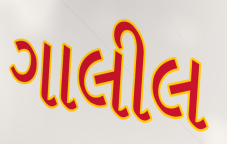
ગાલીલ